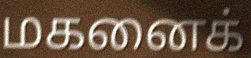
மகனைக்